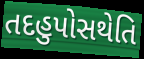
તદહુપોસથેતિ